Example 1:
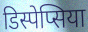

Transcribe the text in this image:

डिस्पेप्सिया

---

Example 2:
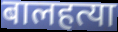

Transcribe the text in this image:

बालहत्या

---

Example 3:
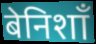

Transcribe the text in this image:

बेनिशाँ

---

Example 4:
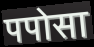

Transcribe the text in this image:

पपोसा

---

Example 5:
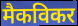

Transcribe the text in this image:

मैकविकर